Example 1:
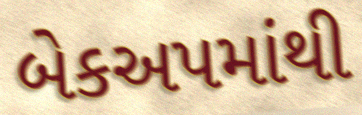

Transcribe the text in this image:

બેકઅપમાંથી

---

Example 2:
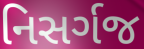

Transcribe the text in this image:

નિસર્ગજ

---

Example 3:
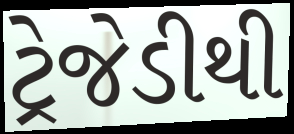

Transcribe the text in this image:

ટ્રેજેડીથી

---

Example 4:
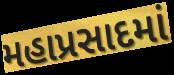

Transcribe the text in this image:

મહાપ્રસાદમાં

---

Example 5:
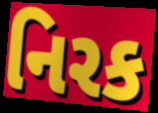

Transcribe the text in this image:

નિરક